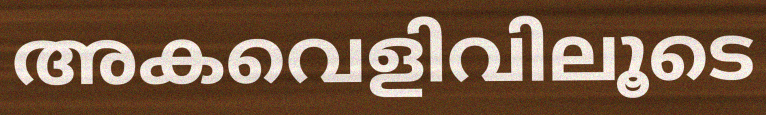
അകവെളിവിലൂടെ